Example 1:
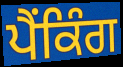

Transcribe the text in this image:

ਪੈਂਕਿੰਗ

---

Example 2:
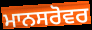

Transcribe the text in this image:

ਮਾਨਸਰੋਵਰ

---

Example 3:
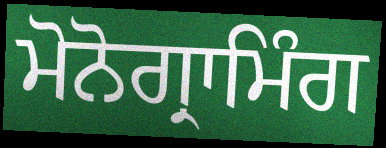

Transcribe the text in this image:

ਮੋਨੋਗ੍ਰਾਮਿੰਗ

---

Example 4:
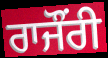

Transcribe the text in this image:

ਰਾਜੌਂਰੀ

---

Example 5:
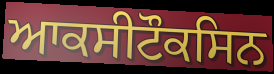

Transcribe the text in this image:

ਆਕਸੀਟੌਕਸਿਨ